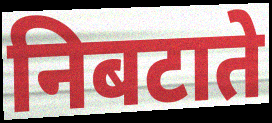
निबटाते